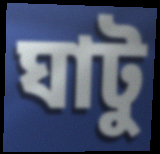
ঘাটু